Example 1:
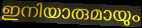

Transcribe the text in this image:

ഇനിയാരുമായും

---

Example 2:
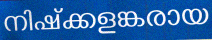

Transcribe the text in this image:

നിഷ്ക്കളങ്കരായ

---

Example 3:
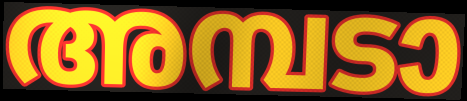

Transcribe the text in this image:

അമ്പടാ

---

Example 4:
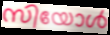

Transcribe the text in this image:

സിയോൾ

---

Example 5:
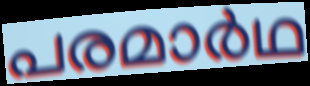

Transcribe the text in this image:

പരമാർഥ